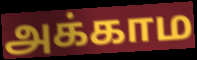
அக்காம